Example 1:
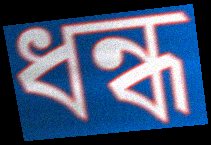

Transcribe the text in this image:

ধন্ধ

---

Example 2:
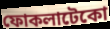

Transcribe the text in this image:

ফোকলাটেকো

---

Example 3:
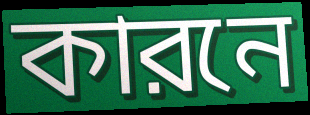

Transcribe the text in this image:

কারনে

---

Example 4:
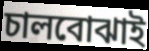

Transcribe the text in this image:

চালবোঝাই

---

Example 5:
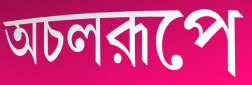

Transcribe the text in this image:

অচলরূপে